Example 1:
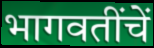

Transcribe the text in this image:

भागवतींचें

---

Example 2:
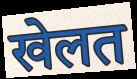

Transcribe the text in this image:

खेलत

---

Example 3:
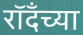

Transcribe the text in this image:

रॉदँच्या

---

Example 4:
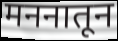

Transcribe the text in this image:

मननातून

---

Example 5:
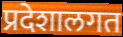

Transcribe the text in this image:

प्रदेशालगत